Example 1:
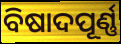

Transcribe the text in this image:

ବିଷାଦପୂର୍ଣ୍ଣ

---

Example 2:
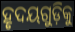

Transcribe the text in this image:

ହୃଦୟଗୁଡ଼ିକୁ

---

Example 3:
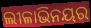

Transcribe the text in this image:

ଲୀଳାଭିନୟର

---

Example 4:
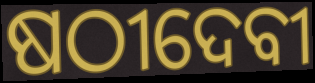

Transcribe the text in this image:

ଷଠୀଦେବୀ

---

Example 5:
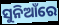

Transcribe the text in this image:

ସୁନିଆଁରେ